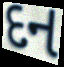
દન